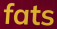
fats